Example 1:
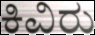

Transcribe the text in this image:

ಕಿವಿರು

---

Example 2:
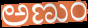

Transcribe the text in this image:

ಅಣುಂ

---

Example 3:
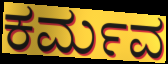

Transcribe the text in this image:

ಕರ್ಮವ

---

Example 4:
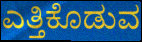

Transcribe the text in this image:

ಎತ್ತಿಕೊಡುವ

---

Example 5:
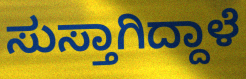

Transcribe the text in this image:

ಸುಸ್ತಾಗಿದ್ದಾಳೆ